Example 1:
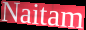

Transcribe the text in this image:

Naitam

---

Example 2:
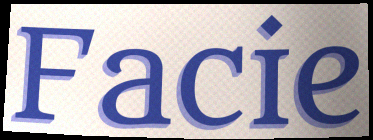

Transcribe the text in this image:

Facie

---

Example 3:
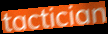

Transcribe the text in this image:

tactician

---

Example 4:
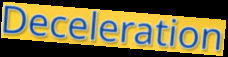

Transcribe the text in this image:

Deceleration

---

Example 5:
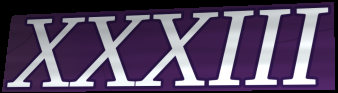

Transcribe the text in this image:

XXXIII